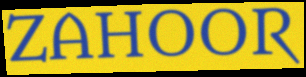
ZAHOOR